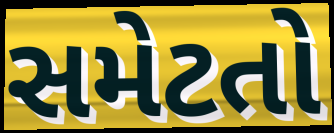
સમેટતો